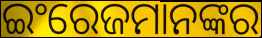
ଇଂରେଜମାନଙ୍କର